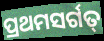
ପ୍ରଥମସର୍ଗତ୍